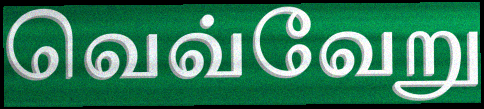
வெவ்வேறு